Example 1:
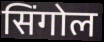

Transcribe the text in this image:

सिंगोल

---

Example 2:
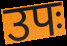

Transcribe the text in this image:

उपः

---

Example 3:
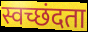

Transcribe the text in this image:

स्वच्छंदता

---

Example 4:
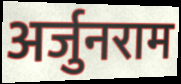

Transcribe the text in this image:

अर्जुनराम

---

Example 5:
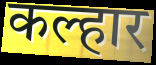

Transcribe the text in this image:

कल्हार